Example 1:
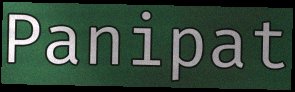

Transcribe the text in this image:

Panipat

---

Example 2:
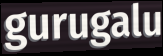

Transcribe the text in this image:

gurugalu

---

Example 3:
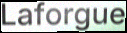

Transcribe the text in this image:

Laforgue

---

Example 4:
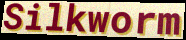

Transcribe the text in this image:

Silkworm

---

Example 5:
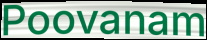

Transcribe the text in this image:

Poovanam